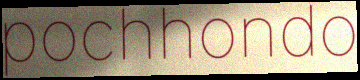
pochhondo